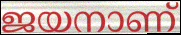
ജയനാണ്